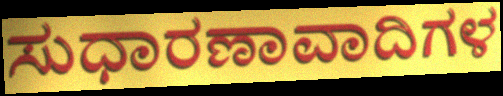
ಸುಧಾರಣಾವಾದಿಗಳ